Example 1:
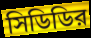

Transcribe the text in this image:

সিডিডির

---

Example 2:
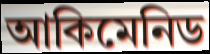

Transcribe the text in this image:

আকিমেনিড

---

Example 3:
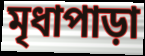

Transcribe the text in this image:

মৃধাপাড়া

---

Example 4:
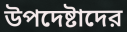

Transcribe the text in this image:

উপদেষ্টাদের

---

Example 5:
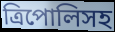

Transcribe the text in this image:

ত্রিপোলিসহ